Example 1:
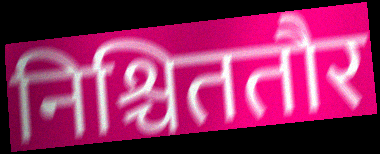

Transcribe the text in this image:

निश्चिततौर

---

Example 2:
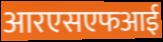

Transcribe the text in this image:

आरएसएफआई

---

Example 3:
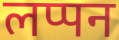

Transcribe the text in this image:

लप्पन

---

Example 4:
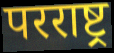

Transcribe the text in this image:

परराष्ट्र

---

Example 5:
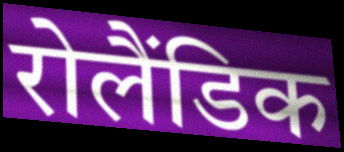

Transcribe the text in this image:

रोलैंडिक